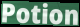
Potion